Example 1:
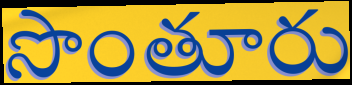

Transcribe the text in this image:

సొంతూరు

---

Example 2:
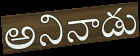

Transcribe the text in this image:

అనినాడు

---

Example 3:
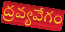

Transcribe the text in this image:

ద్రవ్యవేగం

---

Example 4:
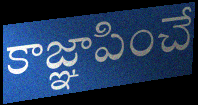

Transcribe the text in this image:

కాజ్ఞాపించే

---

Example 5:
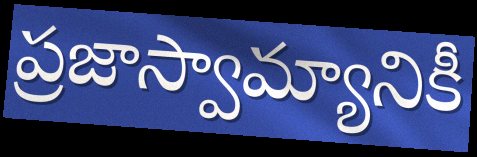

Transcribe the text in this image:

ప్రజాస్వామ్యానికీ